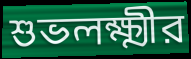
শুভলক্ষ্মীর